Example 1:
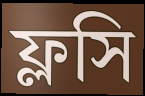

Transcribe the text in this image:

ফ্লসি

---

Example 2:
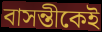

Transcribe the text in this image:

বাসন্তীকেই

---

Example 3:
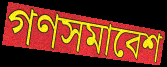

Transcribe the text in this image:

গণসমাবেশ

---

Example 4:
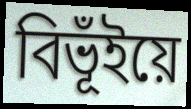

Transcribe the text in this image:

বিভূঁইয়ে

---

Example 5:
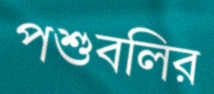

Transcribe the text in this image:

পশুবলির